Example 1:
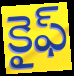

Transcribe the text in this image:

కైఫ్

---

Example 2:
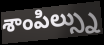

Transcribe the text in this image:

శాంపిల్స్ను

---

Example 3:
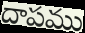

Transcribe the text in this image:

దాపము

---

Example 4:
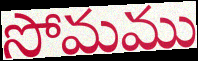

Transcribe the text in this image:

సోమము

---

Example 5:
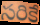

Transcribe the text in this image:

సరికే